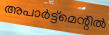
അപാർട്ട്മെന്റിൽ